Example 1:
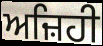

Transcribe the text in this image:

ਅਜ਼ਿਹੀ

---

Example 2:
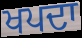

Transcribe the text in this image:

ਖਪਦਾ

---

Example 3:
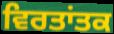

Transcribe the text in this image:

ਵਿਰਤਾਂਤਕ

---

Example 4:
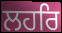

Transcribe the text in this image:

ਲਹਰਿ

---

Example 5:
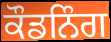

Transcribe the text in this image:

ਕੌਡਨਿੰਗ